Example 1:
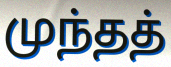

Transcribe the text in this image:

முந்தத்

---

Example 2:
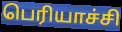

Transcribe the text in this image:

பெரியாச்சி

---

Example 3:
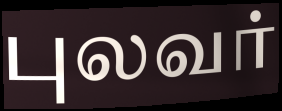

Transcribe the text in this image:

புலவர்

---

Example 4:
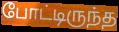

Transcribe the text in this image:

போட்டிருந்த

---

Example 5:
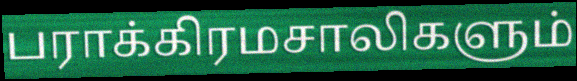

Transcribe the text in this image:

பராக்கிரமசாலிகளும்